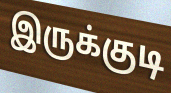
இருக்குடி